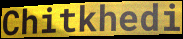
Chitkhedi